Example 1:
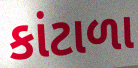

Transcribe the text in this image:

કાંટાળા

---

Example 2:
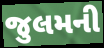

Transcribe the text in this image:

જુલમની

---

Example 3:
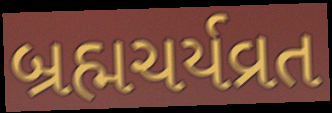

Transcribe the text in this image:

બ્રહ્મચર્યવ્રત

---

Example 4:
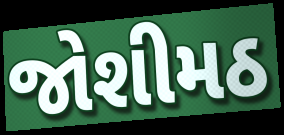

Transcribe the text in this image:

જોશીમઠ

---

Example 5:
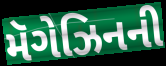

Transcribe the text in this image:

મૅગેઝિનની